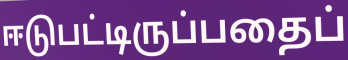
ஈடுபட்டிருப்பதைப்